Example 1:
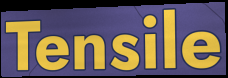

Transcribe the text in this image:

Tensile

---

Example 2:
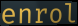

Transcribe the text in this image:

enrol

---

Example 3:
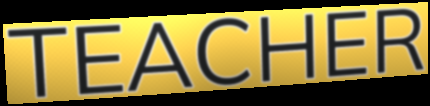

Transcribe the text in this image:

TEACHER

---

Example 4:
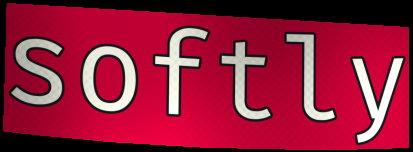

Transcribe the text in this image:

softly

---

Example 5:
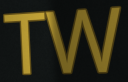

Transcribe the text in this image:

TW